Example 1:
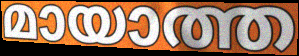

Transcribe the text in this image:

മായാത്ത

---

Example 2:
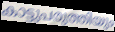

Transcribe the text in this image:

കാട്ടുപരുത്തിയും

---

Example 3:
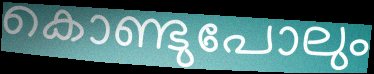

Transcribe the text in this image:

കൊണ്ടുപോലും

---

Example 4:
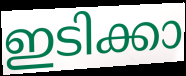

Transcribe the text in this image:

ഇടിക്കാ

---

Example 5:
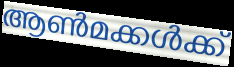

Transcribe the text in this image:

ആൺമക്കൾക്ക്